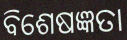
ବିଶେଷଜ୍ଞତା